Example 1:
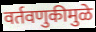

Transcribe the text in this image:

वर्तवणुकीमुळे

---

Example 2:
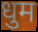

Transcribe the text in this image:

धुम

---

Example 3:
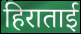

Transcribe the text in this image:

हिराताई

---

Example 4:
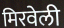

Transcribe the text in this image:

मिरवेली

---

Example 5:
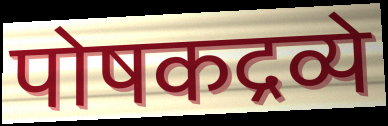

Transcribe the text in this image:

पोषकद्रव्ये